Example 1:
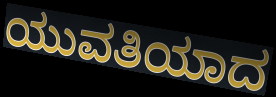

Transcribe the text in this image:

ಯುವತಿಯಾದ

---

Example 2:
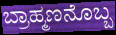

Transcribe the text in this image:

ಬ್ರಾಹ್ಮಣನೊಬ್ಬ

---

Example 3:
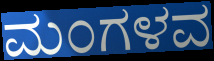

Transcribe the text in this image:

ಮಂಗಳವ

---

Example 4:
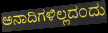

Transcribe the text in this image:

ಅನಾದಿಗಳಿಲ್ಲದಂದು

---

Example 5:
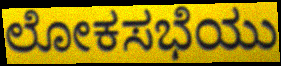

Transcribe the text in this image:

ಲೋಕಸಭೆಯು